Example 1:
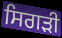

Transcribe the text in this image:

ਸਿਗੜੀ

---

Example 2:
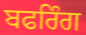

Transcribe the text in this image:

ਬਫਰਿੰਗ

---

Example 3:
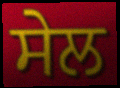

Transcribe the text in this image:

ਸੇਲ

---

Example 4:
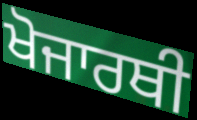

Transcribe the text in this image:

ਖੋਜਾਰਥੀ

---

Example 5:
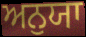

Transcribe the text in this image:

ਅਨੁਯਾ